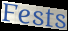
Fests